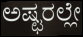
ಅಷ್ಟರಲ್ಲೇ